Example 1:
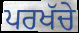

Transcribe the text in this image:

ਪਰਖੱਚੇ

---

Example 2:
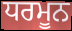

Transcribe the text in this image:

ਧਰਮੂਨ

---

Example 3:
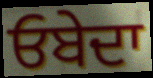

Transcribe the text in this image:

ਓਬੇਦਾ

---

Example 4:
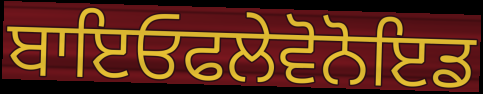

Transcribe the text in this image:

ਬਾਇਓਫਲੇਵੋਨੋਇਡ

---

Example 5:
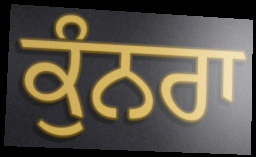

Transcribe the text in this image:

ਕੁੰਨਰਾ